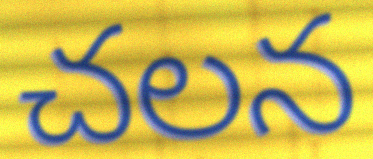
చలన